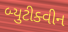
બ્યુટીક્વીન